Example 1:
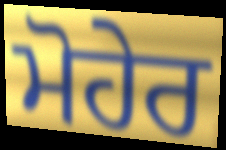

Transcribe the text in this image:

ਮੋਹੇਰ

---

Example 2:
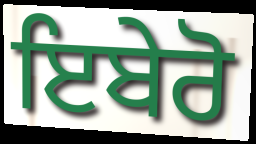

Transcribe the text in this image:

ਇਬੇਰੋ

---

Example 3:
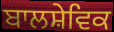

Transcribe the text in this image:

ਬਾਲਸ਼ੇਵਿਕ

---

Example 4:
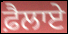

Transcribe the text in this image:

ਫ਼ੈਲਾਏ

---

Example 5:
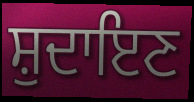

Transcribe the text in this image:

ਸ਼ੁਦਾਇਣ